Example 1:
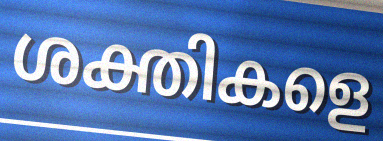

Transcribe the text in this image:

ശക്തികളെ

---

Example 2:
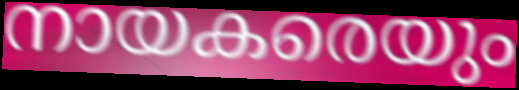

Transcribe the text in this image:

നായകരെയും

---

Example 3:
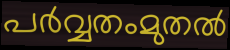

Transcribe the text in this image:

പർവ്വതംമുതൽ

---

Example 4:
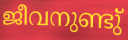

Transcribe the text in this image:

ജീവനുണ്ടു്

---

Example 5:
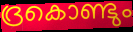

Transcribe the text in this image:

ദ്രകൊണ്ടും